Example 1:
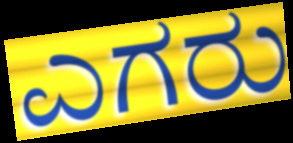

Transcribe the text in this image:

ಎಗರು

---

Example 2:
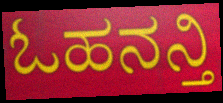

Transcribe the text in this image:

ಓಹನನ್ತಿ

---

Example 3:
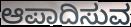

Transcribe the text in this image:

ಆಪಾದಿಸುವ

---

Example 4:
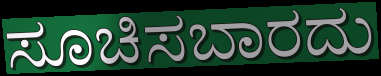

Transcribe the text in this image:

ಸೂಚಿಸಬಾರದು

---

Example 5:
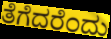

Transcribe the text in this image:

ತೆಗೆದರೆಂದು